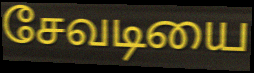
சேவடியை